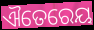
ଐତେରେୟ